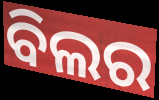
ବିଲର